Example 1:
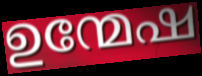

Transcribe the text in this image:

ഉന്മേഷ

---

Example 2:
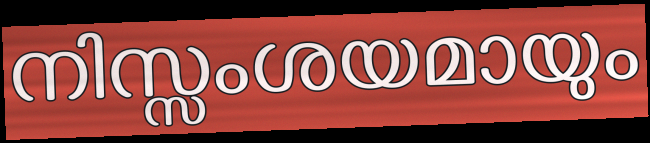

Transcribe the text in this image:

നിസ്സംശയമായും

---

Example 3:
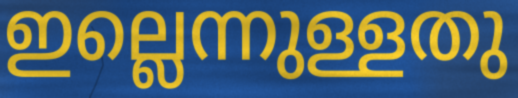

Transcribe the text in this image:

ഇല്ലെന്നുള്ളതു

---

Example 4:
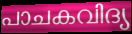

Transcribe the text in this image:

പാചകവിദ്യ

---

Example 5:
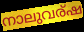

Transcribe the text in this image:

നാലുവര്ഷ